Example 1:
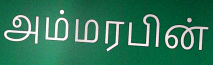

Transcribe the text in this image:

அம்மரபின்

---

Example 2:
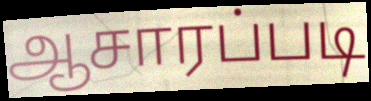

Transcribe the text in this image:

ஆசாரப்படி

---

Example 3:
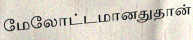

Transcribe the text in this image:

மேலோட்டமானதுதான்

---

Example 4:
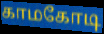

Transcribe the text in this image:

காமகோடி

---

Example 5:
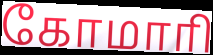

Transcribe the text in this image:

கோமாரி